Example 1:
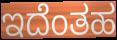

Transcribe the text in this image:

ಇದೆಂತಹ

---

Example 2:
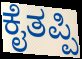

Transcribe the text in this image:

ಕೈತಪ್ಪಿ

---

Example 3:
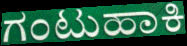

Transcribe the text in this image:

ಗಂಟುಹಾಕಿ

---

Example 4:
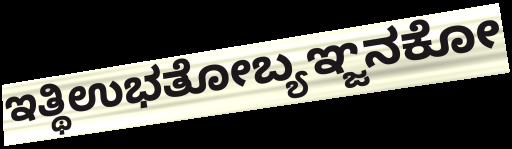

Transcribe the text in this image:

ಇತ್ಥಿಉಭತೋಬ್ಯಞ್ಜನಕೋ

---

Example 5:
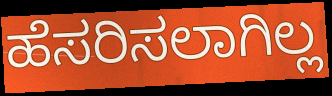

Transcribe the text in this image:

ಹೆಸರಿಸಲಾಗಿಲ್ಲ